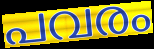
പവരം